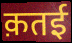
क़तई